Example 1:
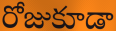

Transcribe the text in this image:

రోజుకూడా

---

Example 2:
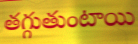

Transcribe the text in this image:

తగ్గుతుంటాయి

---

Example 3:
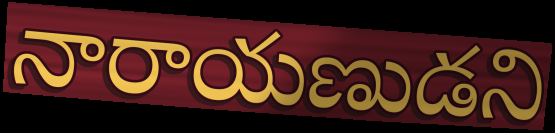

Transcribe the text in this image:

నారాయణుడని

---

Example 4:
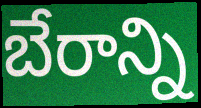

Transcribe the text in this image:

బేరాన్ని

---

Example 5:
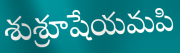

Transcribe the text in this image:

శుశ్రూషేయమపి